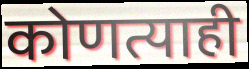
कोणत्याही